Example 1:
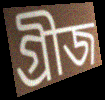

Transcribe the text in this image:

গ্ৰীজ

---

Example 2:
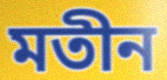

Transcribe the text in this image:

মতীন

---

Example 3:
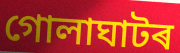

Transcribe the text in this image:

গোলাঘাটৰ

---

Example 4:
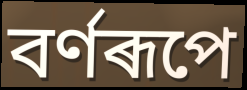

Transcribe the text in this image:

বৰ্ণৰূপে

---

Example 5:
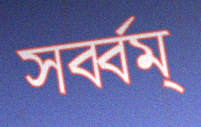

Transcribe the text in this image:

সৰ্ব্বম্